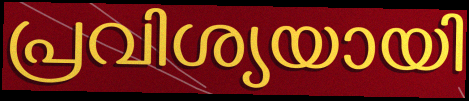
പ്രവിശ്യയായി